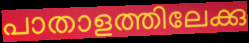
പാതാളത്തിലേക്കു